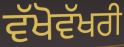
ਵੱਖੋਵੱਖਰੀ